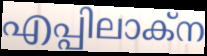
എപ്പിലാക്ന